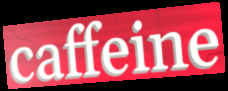
caffeine